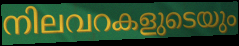
നിലവറകളുടെയും